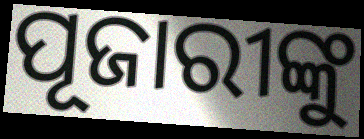
ପୂଜାରୀଙ୍କୁ